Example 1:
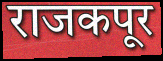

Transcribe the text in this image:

राजकपूर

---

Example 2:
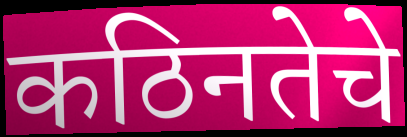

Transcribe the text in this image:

कठिनतेचे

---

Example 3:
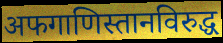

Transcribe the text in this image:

अफगाणिस्तानविरुद्ध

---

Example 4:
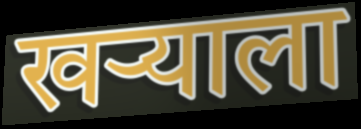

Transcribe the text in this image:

खर्‍याला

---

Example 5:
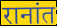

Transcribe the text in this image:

रानांत